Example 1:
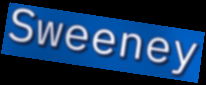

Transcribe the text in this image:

Sweeney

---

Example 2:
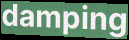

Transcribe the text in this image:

damping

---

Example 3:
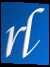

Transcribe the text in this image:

rl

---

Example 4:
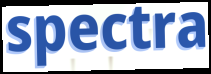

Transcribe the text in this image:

spectra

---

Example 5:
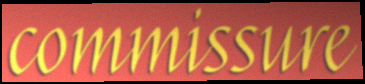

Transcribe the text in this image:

commissure